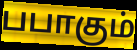
பபாகும்